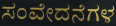
ಸಂವೇದನೆಗಳ